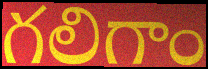
గలిగాం